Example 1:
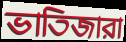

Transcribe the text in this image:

ভাতিজারা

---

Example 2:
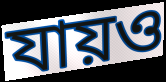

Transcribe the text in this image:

যায়ও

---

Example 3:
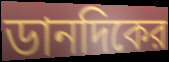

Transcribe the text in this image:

ডানদিকের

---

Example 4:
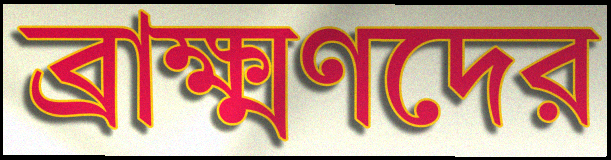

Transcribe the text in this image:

ব্রাক্ষ্মণদের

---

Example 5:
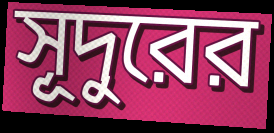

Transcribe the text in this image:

সূদুরের